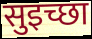
सुइच्छा